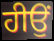
ਹੀਉਂ